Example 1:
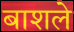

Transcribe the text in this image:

बाशले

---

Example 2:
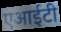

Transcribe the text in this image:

एआईटी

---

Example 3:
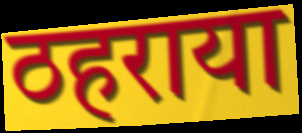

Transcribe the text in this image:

ठहराया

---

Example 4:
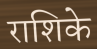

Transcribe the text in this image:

राशिके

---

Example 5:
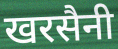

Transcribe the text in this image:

खरसैनी